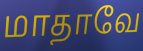
மாதாவே